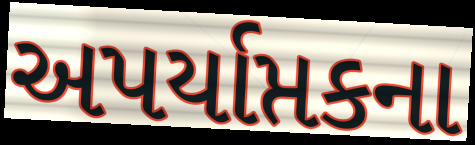
અપર્યાપ્તકના